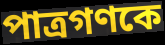
পাত্রগণকে